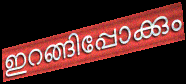
ഇറങ്ങിപ്പോക്കും